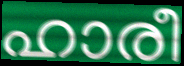
ഹാരീ